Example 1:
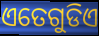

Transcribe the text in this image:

ଏତେଗୁଡିଏ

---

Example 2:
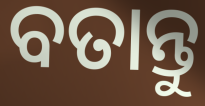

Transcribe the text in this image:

ବତାନ୍ତୁ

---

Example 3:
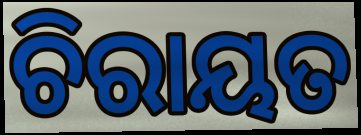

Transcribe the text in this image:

ଚିରାୟତ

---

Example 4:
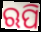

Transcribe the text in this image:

ଋପି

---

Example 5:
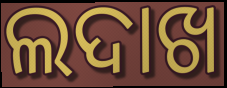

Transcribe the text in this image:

ଲଦାଖ